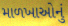
માળખાઓનું